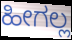
ಹೀಗಲ್ಲ